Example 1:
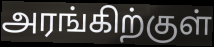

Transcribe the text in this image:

அரங்கிற்குள்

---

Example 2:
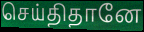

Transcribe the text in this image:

செய்திதானே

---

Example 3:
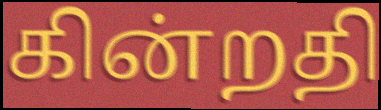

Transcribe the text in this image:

கின்றதி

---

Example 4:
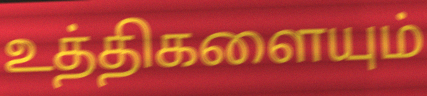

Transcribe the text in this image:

உத்திகளையும்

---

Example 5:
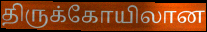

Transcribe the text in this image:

திருக்கோயிலான